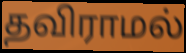
தவிராமல்